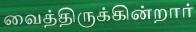
வைத்திருக்கின்றார்